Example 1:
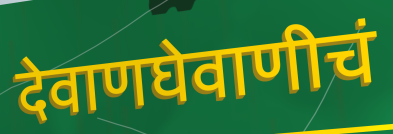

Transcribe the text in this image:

देवाणघेवाणीचं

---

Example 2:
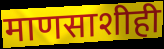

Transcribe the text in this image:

माणसाशीही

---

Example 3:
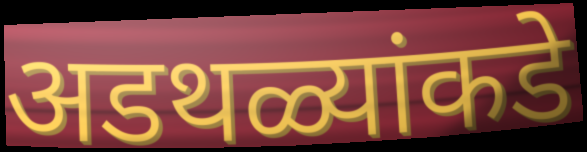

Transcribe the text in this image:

अडथळ्यांकडे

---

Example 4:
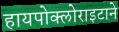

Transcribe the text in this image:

हायपोक्लोराइटाने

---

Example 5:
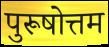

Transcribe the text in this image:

पुरूषोत्तम